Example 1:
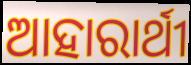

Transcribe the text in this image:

ଆହାରାର୍ଥୀ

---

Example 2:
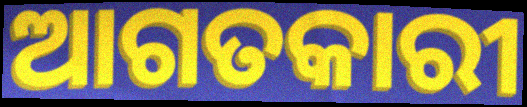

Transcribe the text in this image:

ଆଗତକାରୀ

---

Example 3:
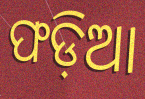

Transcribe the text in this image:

ଫଡ଼ିଆ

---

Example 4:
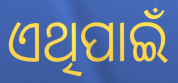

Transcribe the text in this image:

ଏଥିପାଇଁ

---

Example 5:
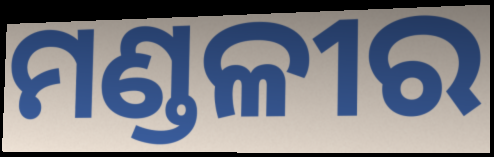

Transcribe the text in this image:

ମଣ୍ଡଳୀର